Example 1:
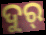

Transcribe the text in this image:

ଦୁର୍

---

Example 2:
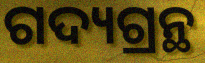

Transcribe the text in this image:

ଗଦ୍ୟଗ୍ରନ୍ଥ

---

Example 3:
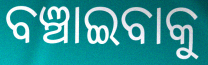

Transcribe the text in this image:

ବଞ୍ଚାଇବାକୁ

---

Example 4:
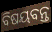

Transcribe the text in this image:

ବିଷୟବନ୍ତ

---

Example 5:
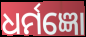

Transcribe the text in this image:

ଧର୍ମଜ୍ଞୋ